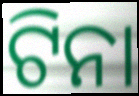
ଟିନା